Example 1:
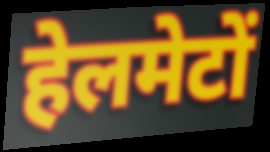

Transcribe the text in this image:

हेलमेटों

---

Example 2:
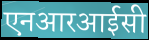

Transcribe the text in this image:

एनआरआईसी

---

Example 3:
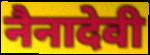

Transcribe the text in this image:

नैनादेवी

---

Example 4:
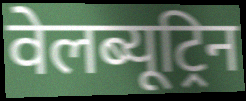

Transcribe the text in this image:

वेलब्यूट्रिन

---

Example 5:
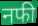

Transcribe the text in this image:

नफी